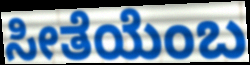
ಸೀತೆಯೆಂಬ